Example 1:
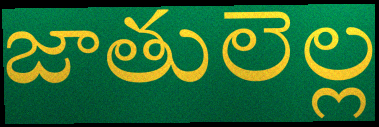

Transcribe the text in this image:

జాతులెల్ల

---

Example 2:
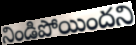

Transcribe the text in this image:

నిండిపోయిందని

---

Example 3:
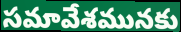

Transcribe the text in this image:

సమావేశమునకు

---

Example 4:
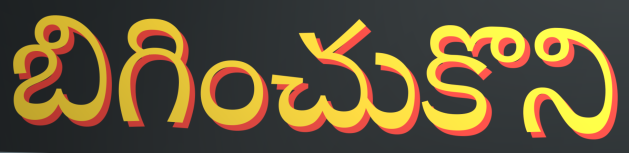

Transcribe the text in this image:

బిగించుకొని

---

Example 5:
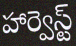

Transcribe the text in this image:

హార్వెస్ట్